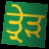
ਤ੍ਰੇੜ